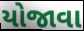
યોજાવા